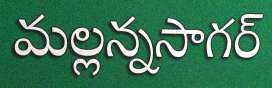
మల్లన్నసాగర్